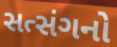
સત્સંગનો